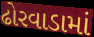
ઢોરવાડામાં